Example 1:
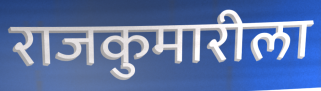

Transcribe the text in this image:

राजकुमारीला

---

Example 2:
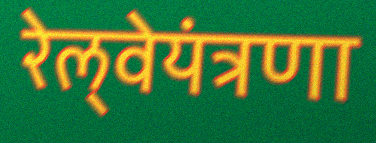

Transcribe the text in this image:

रेल्वेयंत्रणा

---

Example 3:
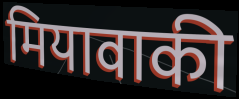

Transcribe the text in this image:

मियावाकी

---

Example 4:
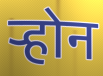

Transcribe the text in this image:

र्‍होन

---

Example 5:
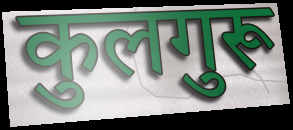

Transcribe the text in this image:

कुलगुरू